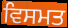
ਵਿਸਮਤ